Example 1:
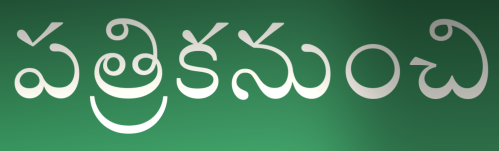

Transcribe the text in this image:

పత్రికనుంచి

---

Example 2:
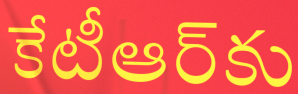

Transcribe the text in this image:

కేటీఆర్‌కు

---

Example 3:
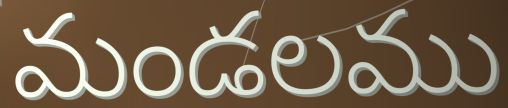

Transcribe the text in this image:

మండలము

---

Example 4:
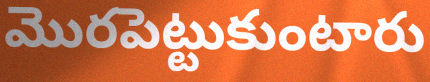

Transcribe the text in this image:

మొరపెట్టుకుంటారు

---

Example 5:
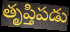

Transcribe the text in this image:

తృప్తిపడు